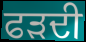
ਫੜਦੀ